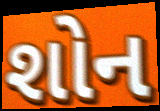
શોન